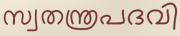
സ്വതന്ത്രപദവി